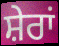
ਸ਼ੇਰਾਂ